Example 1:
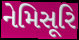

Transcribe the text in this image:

નેમિસૂરિ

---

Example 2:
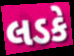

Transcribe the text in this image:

લડકે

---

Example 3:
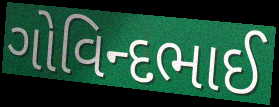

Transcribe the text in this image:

ગોવિન્દભાઈ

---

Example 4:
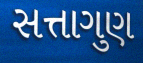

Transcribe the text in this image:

સત્તાગુણ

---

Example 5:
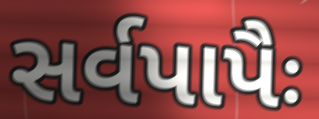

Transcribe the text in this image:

સર્વપાપૈઃ